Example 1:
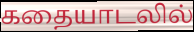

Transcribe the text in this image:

கதையாடலில்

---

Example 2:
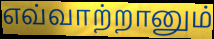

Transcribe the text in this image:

எவ்வாற்றானும்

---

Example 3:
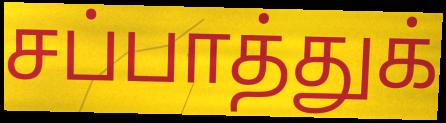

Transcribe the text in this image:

சப்பாத்துக்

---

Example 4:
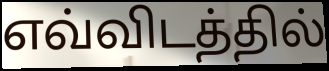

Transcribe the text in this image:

எவ்விடத்தில்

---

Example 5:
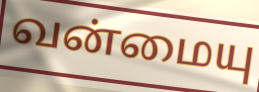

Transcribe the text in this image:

வன்மையு